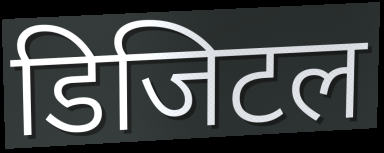
डिजिटल